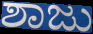
ಶಾಜು